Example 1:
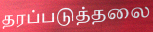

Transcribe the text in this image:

தரப்படுத்தலை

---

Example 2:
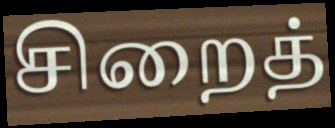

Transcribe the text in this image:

சிறைத்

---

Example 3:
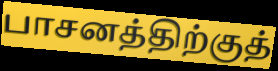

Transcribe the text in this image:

பாசனத்திற்குத்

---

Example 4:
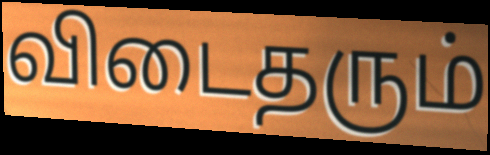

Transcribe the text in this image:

விடைதரும்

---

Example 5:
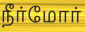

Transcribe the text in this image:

நீர்மோர்